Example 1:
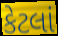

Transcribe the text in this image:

કેટલાં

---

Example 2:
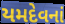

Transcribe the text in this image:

યમદેવનાં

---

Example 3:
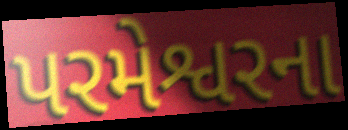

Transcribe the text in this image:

પરમેશ્વરના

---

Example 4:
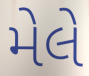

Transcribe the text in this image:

મેલે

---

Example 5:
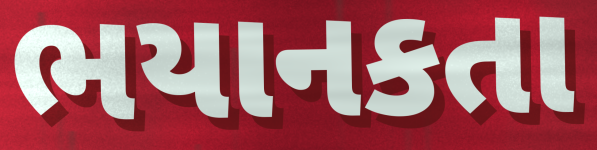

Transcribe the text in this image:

ભયાનકતા